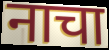
नाचा